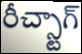
రీచ్స్టాగ్